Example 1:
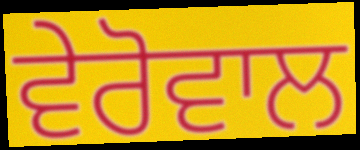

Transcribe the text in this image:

ਵੇਰੋਵਾਲ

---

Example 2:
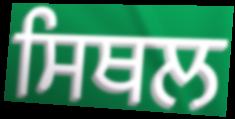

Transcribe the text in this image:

ਸਿਥਲ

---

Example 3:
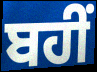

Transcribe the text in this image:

ਬਹੀਂ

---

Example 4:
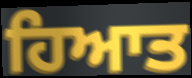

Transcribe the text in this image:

ਹਿਆਤ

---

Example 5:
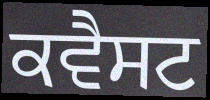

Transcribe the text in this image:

ਕਵੈਸਟ